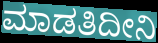
ಮಾಡತಿದೀನಿ